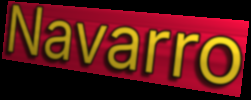
Navarro